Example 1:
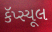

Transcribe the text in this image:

કૅપ્સ્યૂલ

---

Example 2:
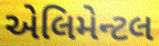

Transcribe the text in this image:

એલિમેન્ટલ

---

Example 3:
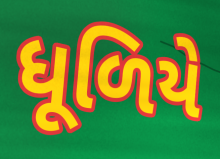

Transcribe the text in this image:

ધૂળિયે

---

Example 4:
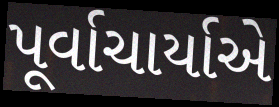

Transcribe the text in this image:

પૂર્વાચાર્યાએ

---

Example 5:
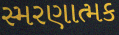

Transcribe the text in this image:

સ્મરણાત્મક